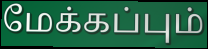
மேக்கப்பும்